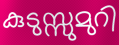
കുടുസ്സുമുറി